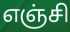
எஞ்சி